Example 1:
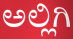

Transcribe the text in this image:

ಅಲ್ಲಿಗಿ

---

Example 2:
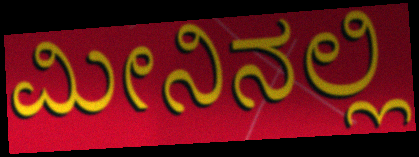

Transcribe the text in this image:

ಮೀನಿನಲ್ಲಿ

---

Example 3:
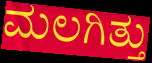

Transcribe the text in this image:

ಮಲಗಿತ್ತು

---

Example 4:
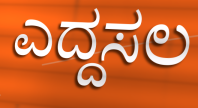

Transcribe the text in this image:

ಎದ್ದಸಲ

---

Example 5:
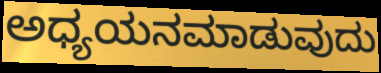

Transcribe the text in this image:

ಅಧ್ಯಯನಮಾಡುವುದು